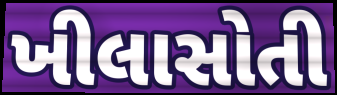
ખીલાસોતી